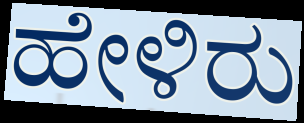
ಹೇಳಿರು